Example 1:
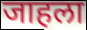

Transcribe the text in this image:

जाहला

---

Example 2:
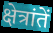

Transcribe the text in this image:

क्षेत्रांतें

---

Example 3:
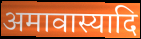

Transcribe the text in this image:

अमावास्यादि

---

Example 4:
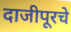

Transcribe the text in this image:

दाजीपूरचे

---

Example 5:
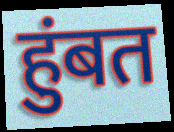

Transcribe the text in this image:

हुंबत